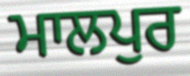
ਮਾਲਪੁਰ